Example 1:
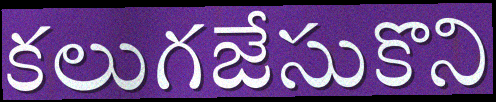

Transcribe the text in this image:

కలుగజేసుకొని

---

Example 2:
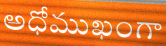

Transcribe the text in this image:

అధోముఖంగా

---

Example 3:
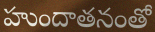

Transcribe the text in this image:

హుందాతనంతో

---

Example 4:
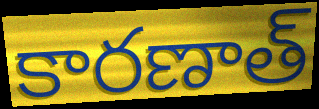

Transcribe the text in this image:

కారణాత్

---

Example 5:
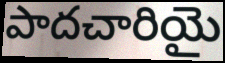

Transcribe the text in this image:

పాదచారియై